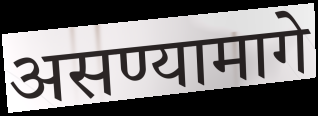
असण्यामागे